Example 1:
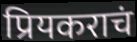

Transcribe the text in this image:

प्रियकराचं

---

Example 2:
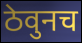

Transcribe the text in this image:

ठेवुनच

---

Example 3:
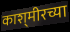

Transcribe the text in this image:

काश्मीरच्या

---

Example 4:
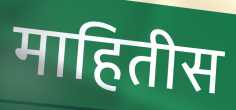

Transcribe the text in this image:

माहितीस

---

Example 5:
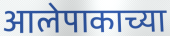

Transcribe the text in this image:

आलेपाकाच्या